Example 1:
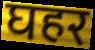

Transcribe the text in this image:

घहर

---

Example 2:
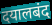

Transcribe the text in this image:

दयालबंद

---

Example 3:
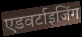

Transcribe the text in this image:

एडवर्टाइजिंग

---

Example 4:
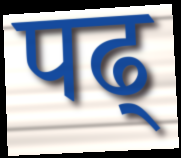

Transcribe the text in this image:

पढ्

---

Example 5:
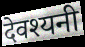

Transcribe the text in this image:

देवश्यनी